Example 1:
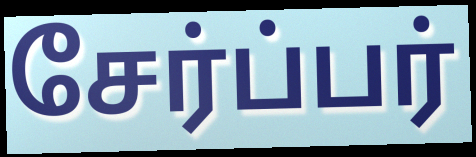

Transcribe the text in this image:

சேர்ப்பர்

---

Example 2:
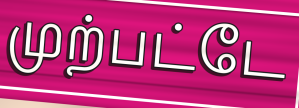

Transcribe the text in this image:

முற்பட்டே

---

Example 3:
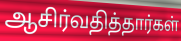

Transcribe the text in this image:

ஆசிர்வதித்தார்கள்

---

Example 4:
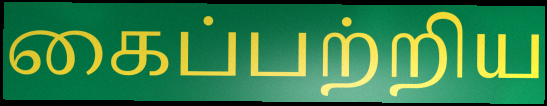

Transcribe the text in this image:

கைப்பற்றிய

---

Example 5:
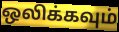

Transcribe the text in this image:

ஒலிக்கவும்